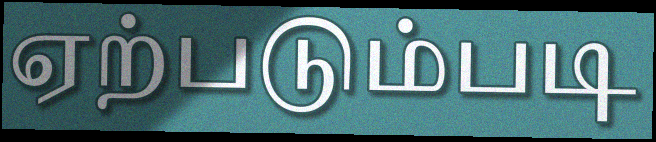
ஏற்படும்படி